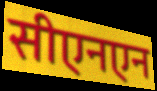
सीएनएन